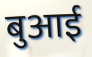
बुआई